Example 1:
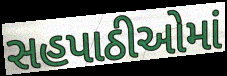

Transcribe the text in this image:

સહપાઠીઓમાં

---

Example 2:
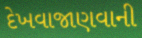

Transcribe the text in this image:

દેખવાજાણવાની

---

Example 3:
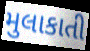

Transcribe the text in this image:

મુલાકાતી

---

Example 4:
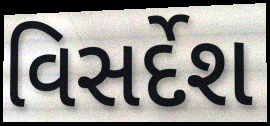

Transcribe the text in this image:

વિસર્દેશ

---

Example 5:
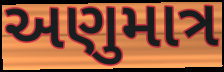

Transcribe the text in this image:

અણુમાત્ર